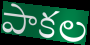
పాకల